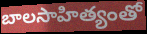
బాలసాహిత్యంతో